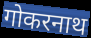
गोकरनाथ